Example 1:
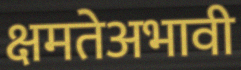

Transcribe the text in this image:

क्षमतेअभावी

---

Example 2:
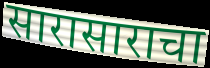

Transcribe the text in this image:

सारासाराचा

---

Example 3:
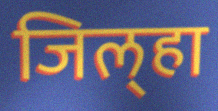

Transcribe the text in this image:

जिल्हा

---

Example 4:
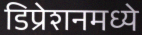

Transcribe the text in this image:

डिप्रेशनमध्ये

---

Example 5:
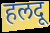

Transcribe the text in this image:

हलदू